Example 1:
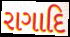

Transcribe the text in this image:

રાગાદિ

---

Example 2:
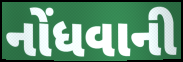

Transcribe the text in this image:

નોંધવાની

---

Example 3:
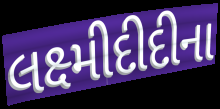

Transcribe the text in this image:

લક્ષ્મીદીદીના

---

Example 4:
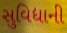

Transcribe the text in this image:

સુવિદ્યાની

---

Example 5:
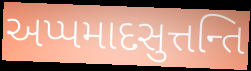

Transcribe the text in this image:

અપ્પમાદસુત્તન્તિ